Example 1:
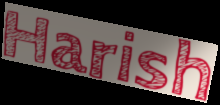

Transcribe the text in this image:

Harish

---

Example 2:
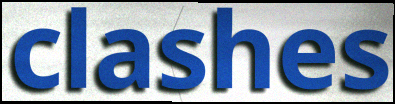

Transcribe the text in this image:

clashes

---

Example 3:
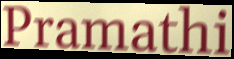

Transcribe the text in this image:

Pramathi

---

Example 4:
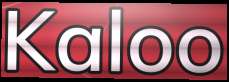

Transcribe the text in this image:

Kaloo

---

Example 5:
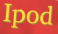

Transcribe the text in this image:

Ipod